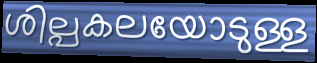
ശില്പകലയോടുള്ള